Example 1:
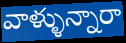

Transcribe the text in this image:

వాళ్ళున్నారా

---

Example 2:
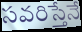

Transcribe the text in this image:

సవరిస్తేనే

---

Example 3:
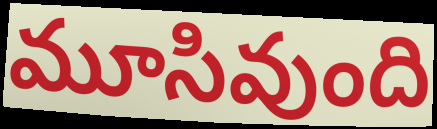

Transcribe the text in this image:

మూసివుంది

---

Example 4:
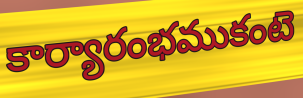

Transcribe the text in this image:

కార్యారంభముకంటె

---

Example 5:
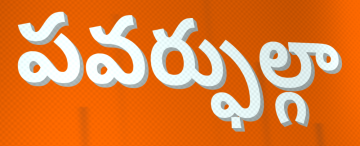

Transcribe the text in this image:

పవర్ఫుల్గా